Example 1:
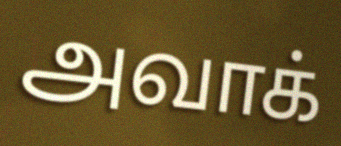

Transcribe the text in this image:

அவாக்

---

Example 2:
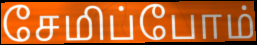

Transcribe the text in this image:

சேமிப்போம்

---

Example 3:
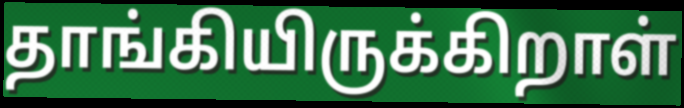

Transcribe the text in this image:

தாங்கியிருக்கிறாள்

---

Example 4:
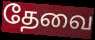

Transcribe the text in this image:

தேவை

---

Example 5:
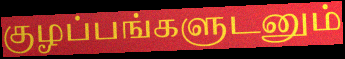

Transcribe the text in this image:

குழப்பங்களுடனும்